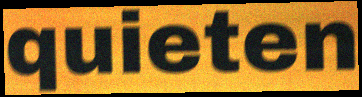
quieten